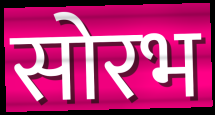
सोरभ